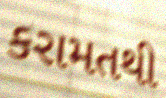
કરામતથી